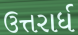
ઉત્તરાર્ધ